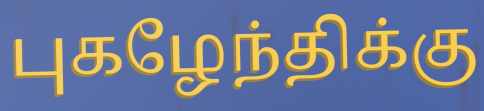
புகழேந்திக்கு